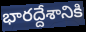
భారద్దేశానికి